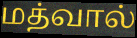
மத்வால்